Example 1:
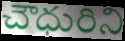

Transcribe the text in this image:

చౌధురిని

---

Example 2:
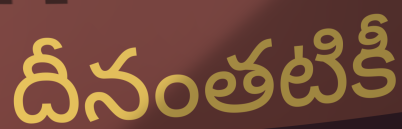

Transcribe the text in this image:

దీనంతటికీ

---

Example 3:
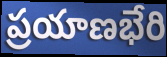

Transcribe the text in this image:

ప్రయాణభేరి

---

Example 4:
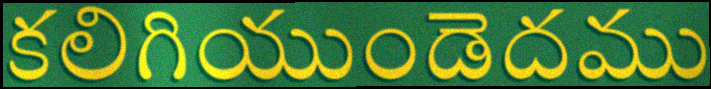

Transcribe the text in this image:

కలిగియుండెదము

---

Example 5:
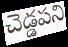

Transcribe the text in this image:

చెడ్డపని